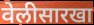
वेलीसारखा